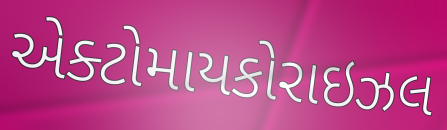
એક્ટોમાયકોરાઇઝલ